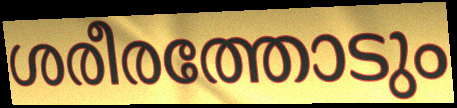
ശരീരത്തോടും